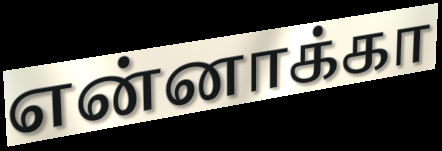
என்னாக்கா